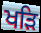
ਖੜਿ